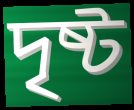
দৃষ্ট